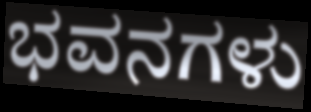
ಭವನಗಳು